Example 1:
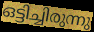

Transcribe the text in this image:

ഒട്ടിച്ചിരുന്നു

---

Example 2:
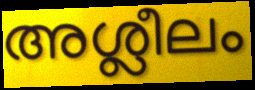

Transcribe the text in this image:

അശ്ലീലം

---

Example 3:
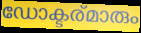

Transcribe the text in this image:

ഡോക്ടര്മാരും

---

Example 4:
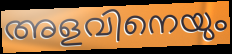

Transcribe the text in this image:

അളവിനെയും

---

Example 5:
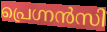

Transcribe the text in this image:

പ്രെഗ്നൻസി